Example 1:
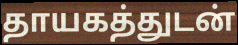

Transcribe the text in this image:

தாயகத்துடன்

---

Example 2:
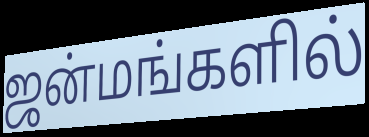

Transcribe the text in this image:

ஜன்மங்களில்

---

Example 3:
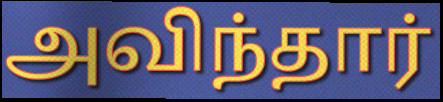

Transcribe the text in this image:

அவிந்தார்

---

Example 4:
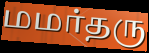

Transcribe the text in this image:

மமர்தரு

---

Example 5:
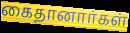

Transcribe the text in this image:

கைதானார்கள்